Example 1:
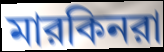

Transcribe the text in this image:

মারকিনরা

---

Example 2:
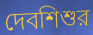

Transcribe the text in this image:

দেবশিশুর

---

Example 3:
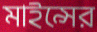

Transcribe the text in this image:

মাইন্সের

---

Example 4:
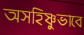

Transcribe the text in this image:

অসহিষ্ণুভাবে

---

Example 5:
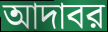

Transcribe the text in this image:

আদাবর